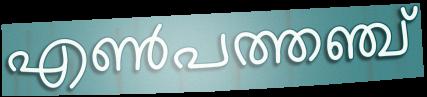
എൺപത്തഞ്ച്